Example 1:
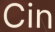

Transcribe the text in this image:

Cin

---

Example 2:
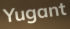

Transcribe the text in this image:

Yugant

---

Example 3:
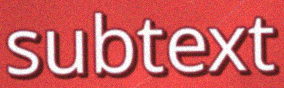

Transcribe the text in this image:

subtext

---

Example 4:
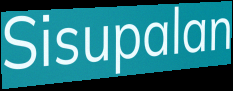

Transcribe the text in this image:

Sisupalan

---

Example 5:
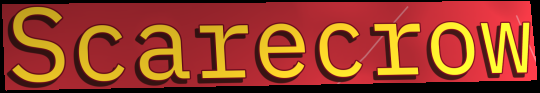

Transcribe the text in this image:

Scarecrow